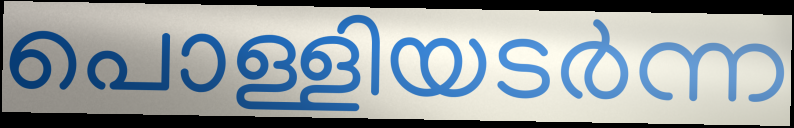
പൊള്ളിയടർന്ന